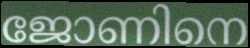
ജോണിനെ